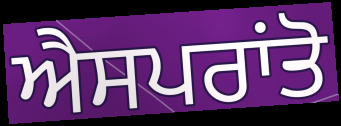
ਐਸਪਰਾਂਤੋ